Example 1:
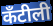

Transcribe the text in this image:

कँटीली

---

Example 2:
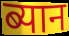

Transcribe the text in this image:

ब्यान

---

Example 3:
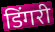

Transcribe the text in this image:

डिंगरी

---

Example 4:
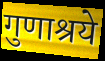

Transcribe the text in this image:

गुणाश्रये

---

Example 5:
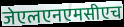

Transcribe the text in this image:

जेएलएनएमसीएच